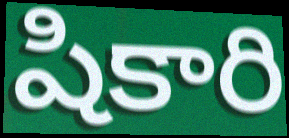
షికారి